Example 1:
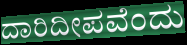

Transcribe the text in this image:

ದಾರಿದೀಪವೆಂದು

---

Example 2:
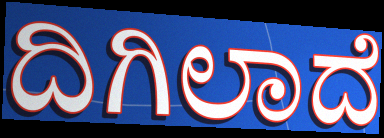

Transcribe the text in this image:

ದಿಗಿಲಾದೆ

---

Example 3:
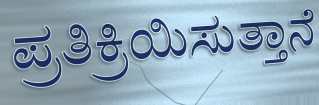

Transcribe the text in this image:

ಪ್ರತಿಕ್ರಿಯಿಸುತ್ತಾನೆ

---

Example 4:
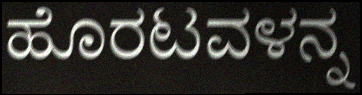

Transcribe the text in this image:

ಹೊರಟವಳನ್ನ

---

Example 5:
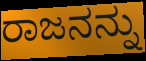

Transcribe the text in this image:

ರಾಜನನ್ನು